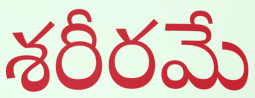
శరీరమే